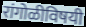
रांगोळीविषयी